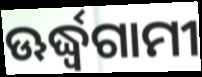
ଊର୍ଦ୍ଧ୍ୱଗାମୀ